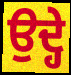
ਉਦ੍ਹੇ